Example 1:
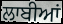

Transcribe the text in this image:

ਲਾਬੀਆਂ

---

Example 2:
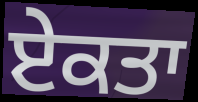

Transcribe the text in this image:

ਏਕਤਾ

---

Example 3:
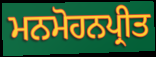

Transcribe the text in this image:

ਮਨਮੋਹਨਪ੍ਰੀਤ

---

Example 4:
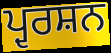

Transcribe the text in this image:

ਪ੍ਦਰਸ਼ਨ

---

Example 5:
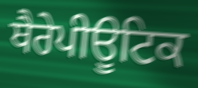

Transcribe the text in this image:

ਥੈਰੇਪੀਊਟਿਕ